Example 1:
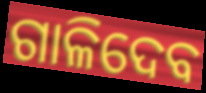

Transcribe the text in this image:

ଗାଳିଦେବ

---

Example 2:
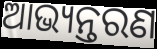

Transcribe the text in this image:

ଆଭ୍ୟନ୍ତରଣ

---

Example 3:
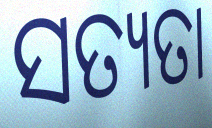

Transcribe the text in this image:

ସତ୍ୟତା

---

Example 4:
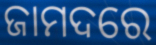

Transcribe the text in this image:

ଜାମଦରେ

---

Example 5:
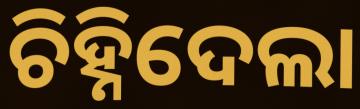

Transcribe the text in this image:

ଚିହ୍ନିଦେଲା